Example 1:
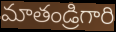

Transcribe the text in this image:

మాతండ్రిగారి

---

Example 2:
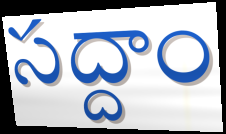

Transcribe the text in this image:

సద్దాం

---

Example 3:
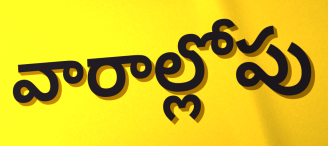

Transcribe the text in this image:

వారాల్లోపు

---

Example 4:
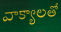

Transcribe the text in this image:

వాక్యాలతో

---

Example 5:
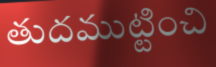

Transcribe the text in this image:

తుదముట్టించి